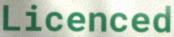
Licenced